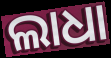
ଲାଧା